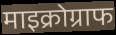
माइक्रोग्राफ